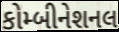
કોમ્બીનેશનલ